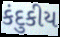
કંદુકીય